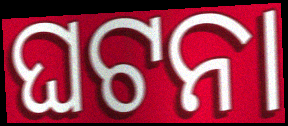
ଘଟନା